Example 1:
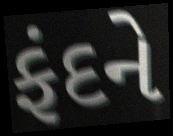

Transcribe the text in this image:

ફંદને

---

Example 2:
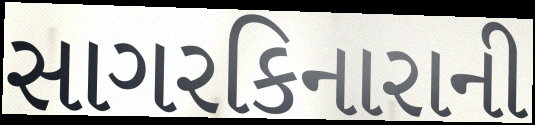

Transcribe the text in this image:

સાગરકિનારાની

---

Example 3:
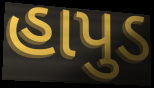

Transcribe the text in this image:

હાપુડ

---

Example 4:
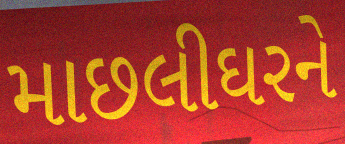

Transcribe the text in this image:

માછલીઘરને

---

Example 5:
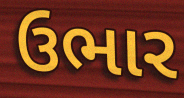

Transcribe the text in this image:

ઉભાર